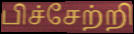
பிச்சேற்றி